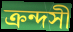
ক্রন্দসী